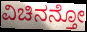
ವಿಚಿನನ್ತೋ